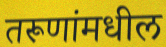
तरूणांमधील